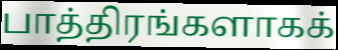
பாத்திரங்களாகக்